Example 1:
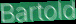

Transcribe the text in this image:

Bartold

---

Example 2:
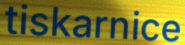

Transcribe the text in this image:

tiskarnice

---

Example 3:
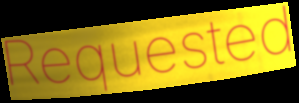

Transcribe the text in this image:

Requested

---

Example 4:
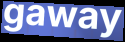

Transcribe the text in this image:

gaway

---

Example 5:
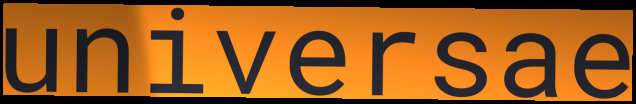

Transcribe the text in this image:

universae